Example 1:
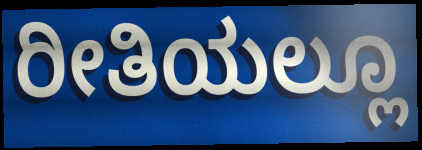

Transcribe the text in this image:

ರೀತಿಯಲ್ಲೂ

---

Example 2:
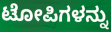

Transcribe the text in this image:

ಟೋಪಿಗಳನ್ನು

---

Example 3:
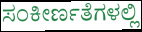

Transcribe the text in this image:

ಸಂಕೀರ್ಣತೆಗಳಲ್ಲಿ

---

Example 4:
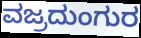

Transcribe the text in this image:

ವಜ್ರದುಂಗುರ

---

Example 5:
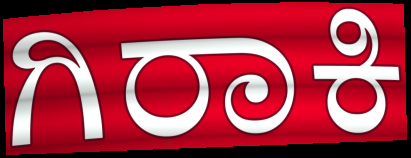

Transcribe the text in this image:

ಗಿರಾಕಿ